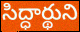
సిద్ధార్థుని